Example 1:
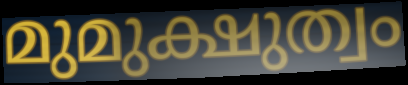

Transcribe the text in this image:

മുമുക്ഷുത്വം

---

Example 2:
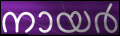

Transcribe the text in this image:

നായർ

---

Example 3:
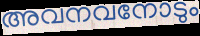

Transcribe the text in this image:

അവനവനോടും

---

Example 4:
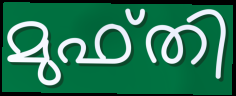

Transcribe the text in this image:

മുഫ്തി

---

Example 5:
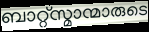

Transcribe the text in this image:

ബാറ്റ്സ്മാന്മാരുടെ